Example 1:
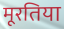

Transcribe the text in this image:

मूरतिया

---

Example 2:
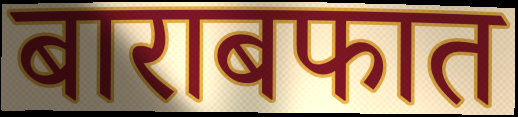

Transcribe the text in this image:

बाराबफात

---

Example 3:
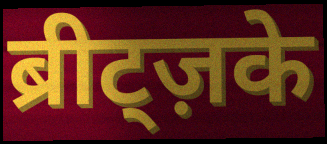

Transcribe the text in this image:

ब्रीट्ज़के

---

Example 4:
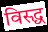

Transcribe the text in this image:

विस्द्ध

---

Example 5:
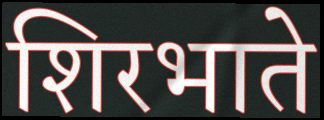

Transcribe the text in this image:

शिरभाते